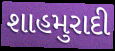
શાહમુરાદી